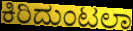
ಕಿರಿದುಂಟಲಾ